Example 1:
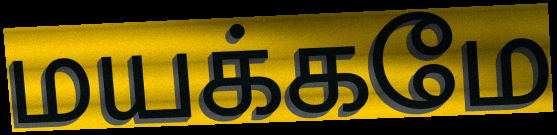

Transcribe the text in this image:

மயக்கமே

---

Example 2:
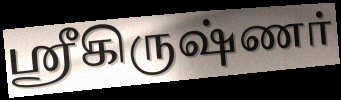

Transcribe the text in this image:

ஶ்ரீகிருஷ்ணர்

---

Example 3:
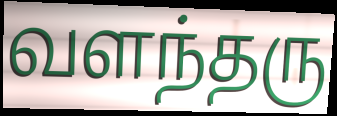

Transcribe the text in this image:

வளந்தரு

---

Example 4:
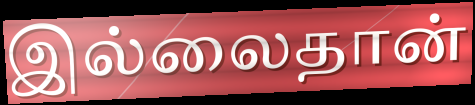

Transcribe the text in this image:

இல்லைதான்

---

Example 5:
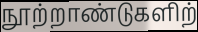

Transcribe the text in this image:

நூற்றாண்டுகளிற்